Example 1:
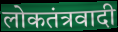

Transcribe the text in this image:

लोकतंत्रवादी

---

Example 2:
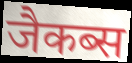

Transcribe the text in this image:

जैकब्स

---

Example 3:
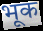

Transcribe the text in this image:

भूक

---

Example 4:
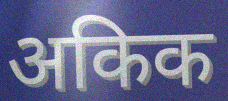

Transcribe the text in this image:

अकिक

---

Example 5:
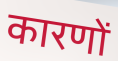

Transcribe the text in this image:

कारणों